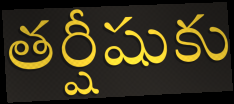
తర్షీషుకు